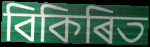
বিকিৰিত